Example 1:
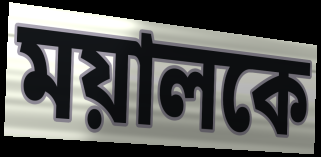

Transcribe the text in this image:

ময়ালকে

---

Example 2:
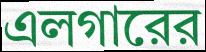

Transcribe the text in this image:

এলগারের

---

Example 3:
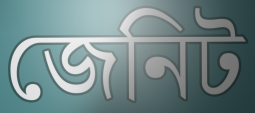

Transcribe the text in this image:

জেনিট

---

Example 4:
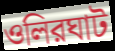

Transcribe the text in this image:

ওলিরঘাট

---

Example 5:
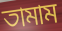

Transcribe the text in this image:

তামাম